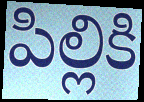
పిల్లికి